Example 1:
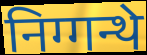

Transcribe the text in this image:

निग्गन्थे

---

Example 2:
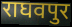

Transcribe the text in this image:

राघवपुर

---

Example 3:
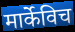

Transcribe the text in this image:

मार्केविच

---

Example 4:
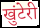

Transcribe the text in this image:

खुंटेरी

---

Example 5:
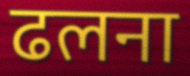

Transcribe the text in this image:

ढलना